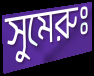
সুমেরুঃ